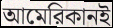
আমেরিকানই